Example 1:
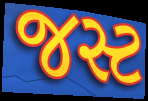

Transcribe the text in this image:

જસ્ટ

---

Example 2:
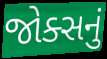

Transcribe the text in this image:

જોક્સનું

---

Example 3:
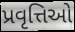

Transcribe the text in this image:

પ્રવૃત્તિઓ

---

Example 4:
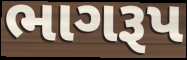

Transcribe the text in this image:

ભાગરૂપ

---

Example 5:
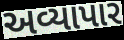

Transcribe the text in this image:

અવ્યાપાર